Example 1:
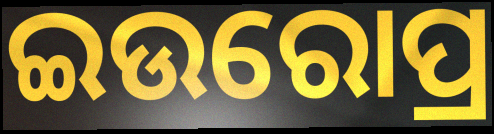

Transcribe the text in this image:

ଇଉରୋପ୍ର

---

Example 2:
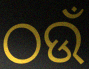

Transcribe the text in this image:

ଠଉଁ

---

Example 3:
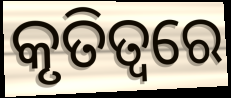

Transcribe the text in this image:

କୃତିତ୍ୱରେ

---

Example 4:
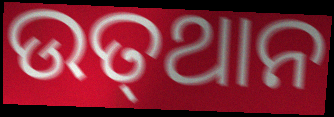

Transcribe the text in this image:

ଉତ୍‌ଥାନ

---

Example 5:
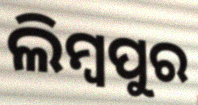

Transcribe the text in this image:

ଲିମ୍ବପୁର